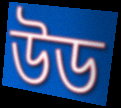
উড